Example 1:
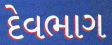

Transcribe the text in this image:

દેવભાગ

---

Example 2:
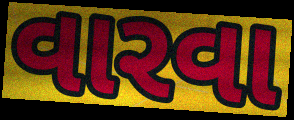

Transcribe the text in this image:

વારવા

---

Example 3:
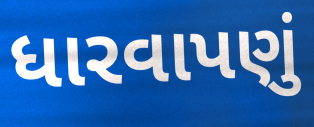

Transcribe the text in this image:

ધારવાપણું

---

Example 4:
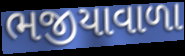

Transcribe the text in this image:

ભજીયાવાળા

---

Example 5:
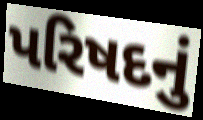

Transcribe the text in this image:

પરિષદનું